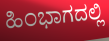
ಹಿಂಭಾಗದಲ್ಲಿ